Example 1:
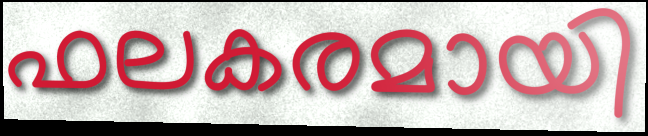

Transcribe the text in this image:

ഫലകരമായി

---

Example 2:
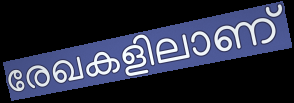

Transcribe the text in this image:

രേഖകളിലാണ്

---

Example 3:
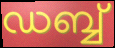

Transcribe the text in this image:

ഡബ്ബ്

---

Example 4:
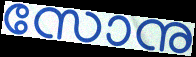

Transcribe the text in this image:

സോനു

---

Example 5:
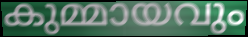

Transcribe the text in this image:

കുമ്മായവും